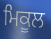
ਮਿਕੂਲ